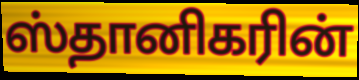
ஸ்தானிகரின்